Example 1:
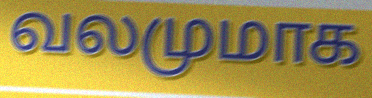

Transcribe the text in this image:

வலமுமாக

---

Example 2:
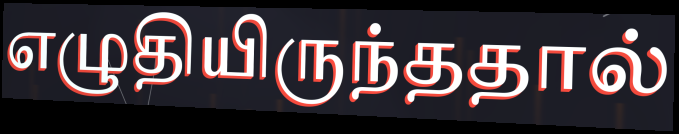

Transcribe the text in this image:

எழுதியிருந்ததால்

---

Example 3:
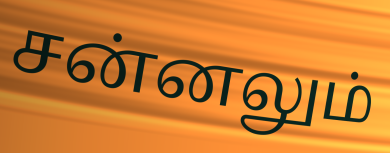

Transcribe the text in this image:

சன்னலும்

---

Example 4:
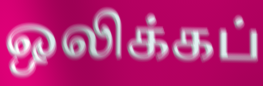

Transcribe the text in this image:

ஒலிக்கப்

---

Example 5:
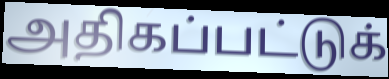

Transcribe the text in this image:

அதிகப்பட்டுக்